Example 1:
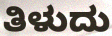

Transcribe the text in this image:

ತಿಳುದು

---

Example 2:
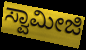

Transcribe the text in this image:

ಸ್ವಾಮೀಜಿ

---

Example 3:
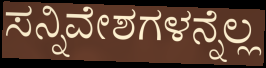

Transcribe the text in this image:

ಸನ್ನಿವೇಶಗಳನ್ನೆಲ್ಲ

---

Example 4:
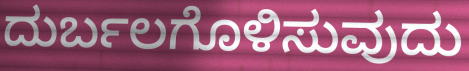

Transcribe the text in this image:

ದುರ್ಬಲಗೊಳಿಸುವುದು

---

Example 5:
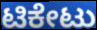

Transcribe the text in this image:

ಟಿಕೇಟು